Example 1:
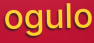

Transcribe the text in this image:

ogulo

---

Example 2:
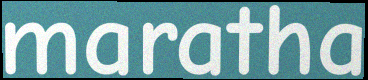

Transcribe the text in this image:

maratha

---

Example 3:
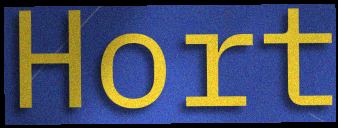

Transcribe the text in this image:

Hort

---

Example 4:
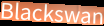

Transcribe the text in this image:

Blackswan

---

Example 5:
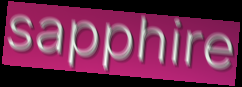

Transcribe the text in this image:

sapphire